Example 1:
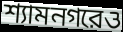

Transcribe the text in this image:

শ্যামনগরেও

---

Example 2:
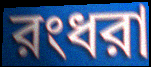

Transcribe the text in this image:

রংধরা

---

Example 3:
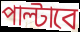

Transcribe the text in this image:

পাল্টাবে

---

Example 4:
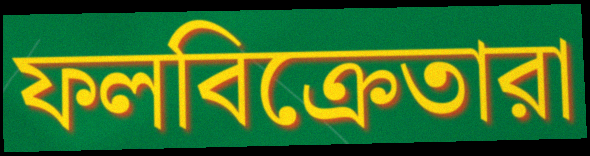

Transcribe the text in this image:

ফলবিক্রেতারা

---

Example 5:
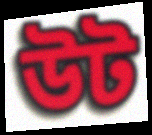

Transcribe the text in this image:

উট